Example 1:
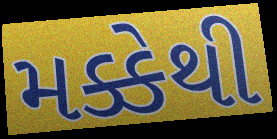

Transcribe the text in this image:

મક્કેથી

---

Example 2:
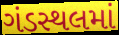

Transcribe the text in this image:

ગંડસ્થલમાં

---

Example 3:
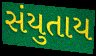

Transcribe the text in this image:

સંયુતાય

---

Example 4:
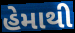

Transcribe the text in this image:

હેમાથી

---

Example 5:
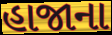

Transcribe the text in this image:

હાજાના